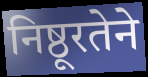
निष्ठूरतेने